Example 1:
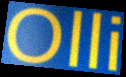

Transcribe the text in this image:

Olli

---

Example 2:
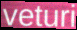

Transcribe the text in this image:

veturi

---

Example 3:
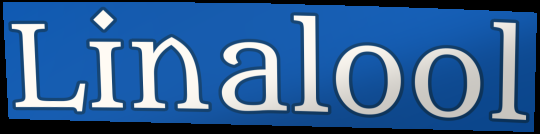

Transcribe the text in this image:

Linalool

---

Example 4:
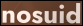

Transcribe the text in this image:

nosuid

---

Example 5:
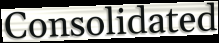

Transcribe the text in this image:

Consolidated